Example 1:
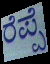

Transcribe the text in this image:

ರೆಪ್ಪೆ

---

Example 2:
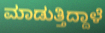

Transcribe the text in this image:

ಮಾಡುತ್ತಿದ್ದಾಳೆ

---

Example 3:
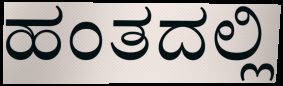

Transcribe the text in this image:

ಹಂತದಲ್ಲಿ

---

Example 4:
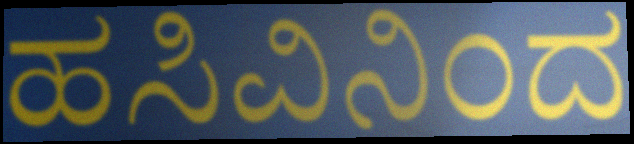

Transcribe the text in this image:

ಹಸಿವಿನಿಂದ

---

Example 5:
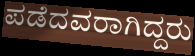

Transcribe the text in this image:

ಪಡೆದವರಾಗಿದ್ದರು